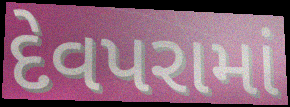
દેવપરામાં